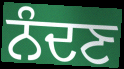
ਨੰਦਣ